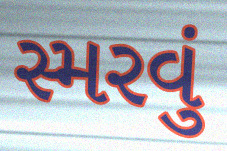
સ્મરવું